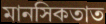
মানসিকতাত